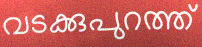
വടക്കുപുറത്ത്